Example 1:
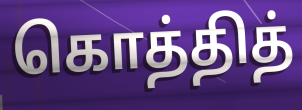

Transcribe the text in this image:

கொத்தித்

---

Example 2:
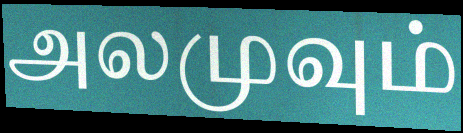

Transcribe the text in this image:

அலமுவும்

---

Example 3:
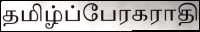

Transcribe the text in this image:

தமிழ்ப்பேரகராதி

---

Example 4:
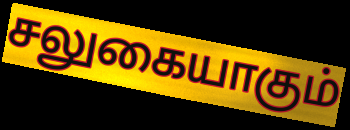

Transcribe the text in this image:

சலுகையாகும்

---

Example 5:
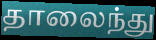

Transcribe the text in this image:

தாலைந்து